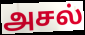
அசல்